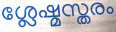
ശ്ലേഷ്മസ്തരം